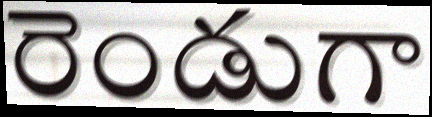
రెండుగా